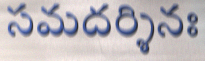
సమదర్శినః